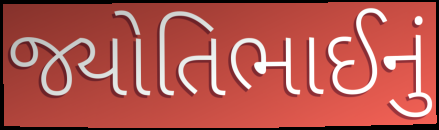
જ્યોતિભાઈનું